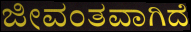
ಜೀವಂತವಾಗಿದೆ